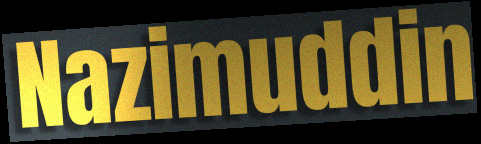
Nazimuddin